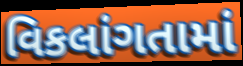
વિકલાંગતામાં